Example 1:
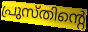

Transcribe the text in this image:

പ്രുസ്തിന്റെ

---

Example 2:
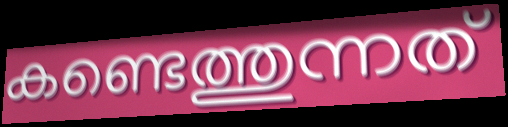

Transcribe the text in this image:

കണ്ടെത്തുന്നത്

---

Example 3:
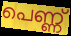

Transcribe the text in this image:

പെണ്ണ്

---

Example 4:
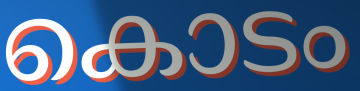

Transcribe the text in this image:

കൊടം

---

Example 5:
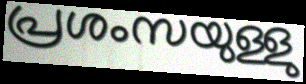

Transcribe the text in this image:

പ്രശംസയുള്ളു